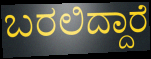
ಬರಲಿದ್ದಾರೆ